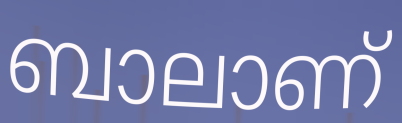
ബാലാണ്